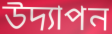
উদ্যাপন